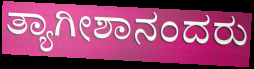
ತ್ಯಾಗೀಶಾನಂದರು